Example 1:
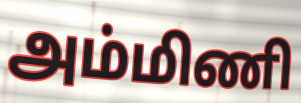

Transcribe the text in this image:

அம்மிணி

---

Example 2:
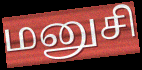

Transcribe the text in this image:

மனுசி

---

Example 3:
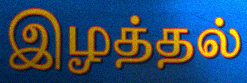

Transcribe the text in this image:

இழத்தல்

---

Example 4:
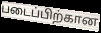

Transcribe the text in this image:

படைப்பிற்கான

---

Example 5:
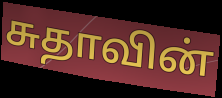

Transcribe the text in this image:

சுதாவின்